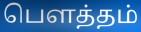
பௌத்தம்